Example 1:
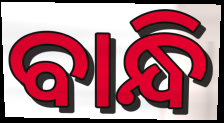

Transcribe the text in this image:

ବାନ୍ଧି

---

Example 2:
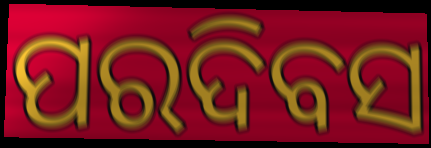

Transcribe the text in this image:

ପରଦିବସ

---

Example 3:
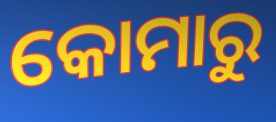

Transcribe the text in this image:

କୋମାରୁ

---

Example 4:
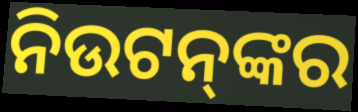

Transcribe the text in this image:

ନିଉଟନ୍‌ଙ୍କର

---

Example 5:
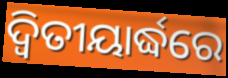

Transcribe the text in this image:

ଦ୍ବିତୀୟାର୍ଦ୍ଧରେ